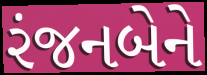
રંજનબેને